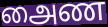
அைண